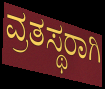
ವ್ರತಸ್ಥರಾಗಿ